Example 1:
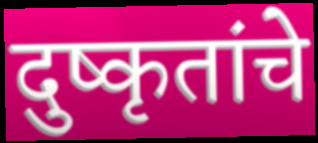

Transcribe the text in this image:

दुष्कृतांचे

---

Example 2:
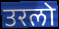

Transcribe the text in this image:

उरलो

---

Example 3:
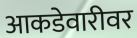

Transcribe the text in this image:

आकडेवारीवर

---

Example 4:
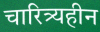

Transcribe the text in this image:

चारित्र्यहीन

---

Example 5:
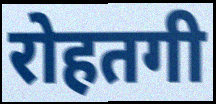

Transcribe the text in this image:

रोहतगी